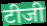
टीजी